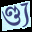
ণ্ড্য